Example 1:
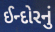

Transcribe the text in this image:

ઈન્દોરનું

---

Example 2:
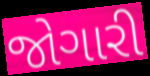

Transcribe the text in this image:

જોગારી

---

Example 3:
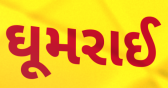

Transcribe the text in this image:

ઘૂમરાઈ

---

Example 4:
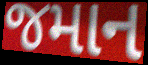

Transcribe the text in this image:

જમાન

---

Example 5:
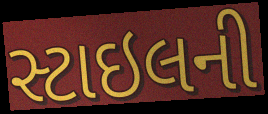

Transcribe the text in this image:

સ્ટાઇલની